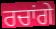
ਰਚਾਂਗੇ